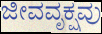
ಜೀವವೃಕ್ಷವು